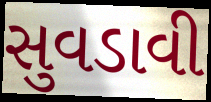
સુવડાવી